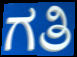
ಗತಿ